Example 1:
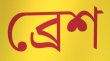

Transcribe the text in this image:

ব্রেশ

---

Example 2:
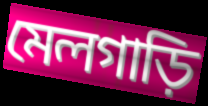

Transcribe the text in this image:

মেলগাড়ি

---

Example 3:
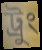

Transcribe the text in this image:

ট্রুং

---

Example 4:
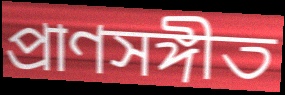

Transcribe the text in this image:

প্রাণসঙ্গীত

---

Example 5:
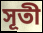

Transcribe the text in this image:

সূতী